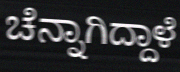
ಚೆನ್ನಾಗಿದ್ದಾಳೆ